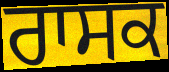
ਰਾਸਕ